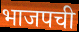
भाजपची